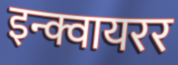
इन्क्वायरर